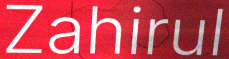
Zahirul